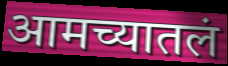
आमच्यातलं